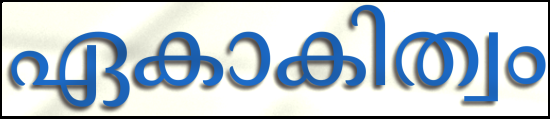
ഏകാകിത്വം